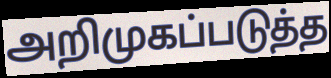
அறிமுகப்படுத்த